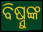
ବିଷ୍ନୁଙ୍କ